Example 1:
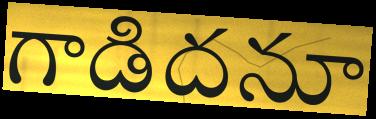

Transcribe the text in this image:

గాడిదనూ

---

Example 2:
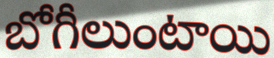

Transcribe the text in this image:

బోగీలుంటాయి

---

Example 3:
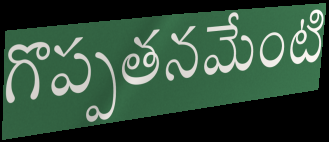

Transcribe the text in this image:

గొప్పతనమేంటి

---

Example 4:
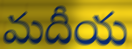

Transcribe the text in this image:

మదీయ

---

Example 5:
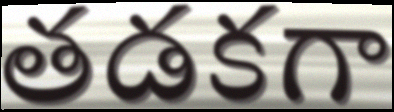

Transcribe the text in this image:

తడకగా